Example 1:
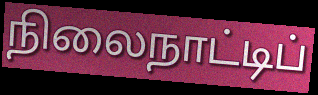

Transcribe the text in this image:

நிலைநாட்டிப்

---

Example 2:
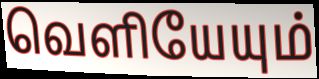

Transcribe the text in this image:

வெளியேயும்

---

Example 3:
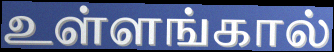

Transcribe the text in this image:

உள்ளங்கால்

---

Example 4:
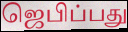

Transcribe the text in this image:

ஜெபிப்பது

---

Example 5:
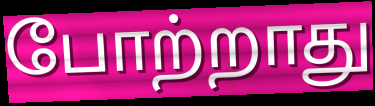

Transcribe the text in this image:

போற்றாது